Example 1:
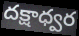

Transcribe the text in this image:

దక్షాధ్వర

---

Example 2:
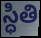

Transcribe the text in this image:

స్ధితి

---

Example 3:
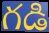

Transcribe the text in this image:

గడి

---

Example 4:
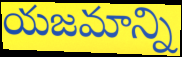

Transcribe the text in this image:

యజమాన్ని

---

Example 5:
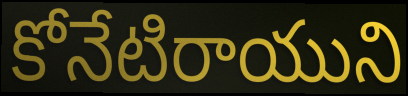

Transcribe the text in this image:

కోనేటిరాయుని